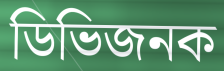
ডিভিজনক